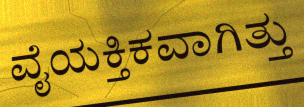
ವೈಯಕ್ತಿಕವಾಗಿತ್ತು